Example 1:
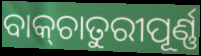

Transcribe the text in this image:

ବାକ୍‌ଚାତୁରୀପୂର୍ଣ୍ଣ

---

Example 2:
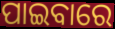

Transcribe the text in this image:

ପାଇବାରେ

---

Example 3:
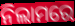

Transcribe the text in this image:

ନିଲାମରେ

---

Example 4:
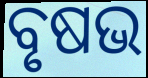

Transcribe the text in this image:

ବୃଷଭ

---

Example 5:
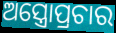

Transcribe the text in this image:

ଅସ୍ତ୍ରୋପ୍ରଚାର